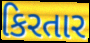
કિરતાર